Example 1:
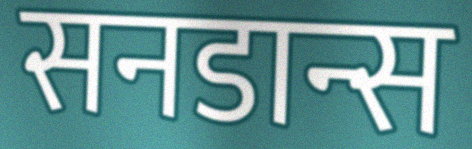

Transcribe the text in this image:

सनडान्स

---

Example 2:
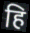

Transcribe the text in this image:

हि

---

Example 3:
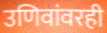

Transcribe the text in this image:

उणिवांवरही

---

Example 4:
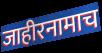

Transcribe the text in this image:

जाहीरनामाच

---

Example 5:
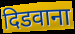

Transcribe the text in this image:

दिडवाना